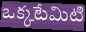
ఒక్కటేమిటి